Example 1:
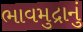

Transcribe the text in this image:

ભાવમુદ્રાનું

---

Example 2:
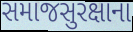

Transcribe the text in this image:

સમાજસુરક્ષાના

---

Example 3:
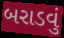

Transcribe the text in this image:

બરાડવું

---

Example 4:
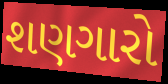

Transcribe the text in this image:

શણગારો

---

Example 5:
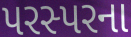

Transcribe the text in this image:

પરસ્પરના